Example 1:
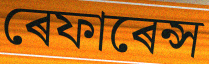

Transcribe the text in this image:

ৰেফাৰেন্স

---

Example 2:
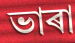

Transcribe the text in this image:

ভাৰা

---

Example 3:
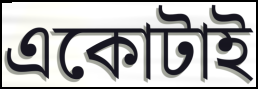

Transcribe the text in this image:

একোটাই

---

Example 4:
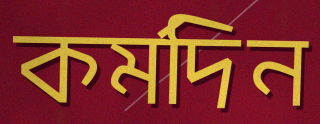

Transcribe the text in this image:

কৰ্মদিন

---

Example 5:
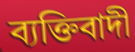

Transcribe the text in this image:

ব্যক্তিবাদী